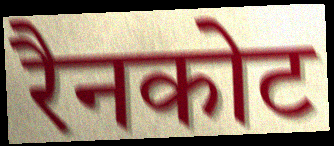
रैनकोट